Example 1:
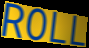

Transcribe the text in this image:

ROLL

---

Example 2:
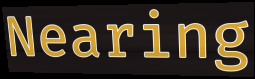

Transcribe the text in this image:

Nearing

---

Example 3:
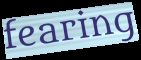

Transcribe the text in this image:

fearing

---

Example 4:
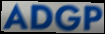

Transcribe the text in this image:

ADGP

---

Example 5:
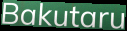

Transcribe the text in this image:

Bakutaru